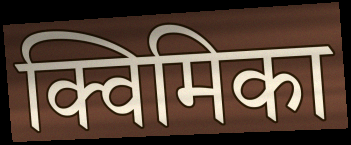
क्विमिका